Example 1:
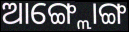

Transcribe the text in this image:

ଆଙ୍ଗ୍ଲୋଙ୍ଗ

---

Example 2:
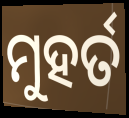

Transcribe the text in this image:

ମୁହର୍ତ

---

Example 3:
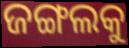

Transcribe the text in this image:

ଜଙ୍ଗଲକୁ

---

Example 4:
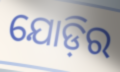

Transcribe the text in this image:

ଯୋଡ଼ିର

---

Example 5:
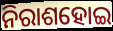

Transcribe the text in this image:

ନିରାଶହୋଇ